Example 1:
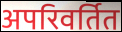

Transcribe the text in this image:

अपरिवर्तित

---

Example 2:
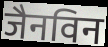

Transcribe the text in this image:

जैनविन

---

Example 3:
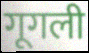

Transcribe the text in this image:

गूगली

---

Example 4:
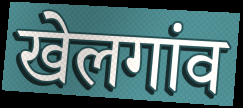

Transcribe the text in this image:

खेलगांव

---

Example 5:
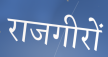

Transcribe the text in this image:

राजगीरों